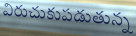
విరుచుకుపడుతున్న